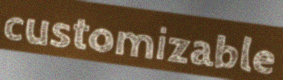
customizable